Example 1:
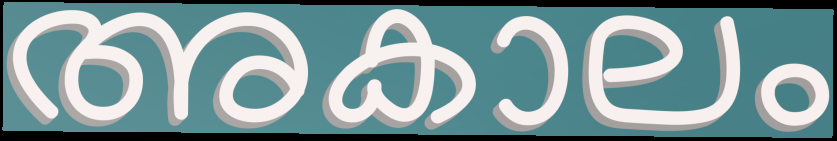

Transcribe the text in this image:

അകാലം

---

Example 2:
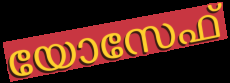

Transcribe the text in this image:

യോസേഫ്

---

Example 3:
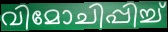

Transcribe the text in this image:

വിമോചിപ്പിച്ച്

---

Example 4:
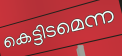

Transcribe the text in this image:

കെട്ടിടമെന്ന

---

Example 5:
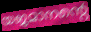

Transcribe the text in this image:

യജമാനന്റെ